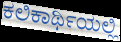
ಕಲಿಕಾರ್ಥಿಯಲ್ಲಿ